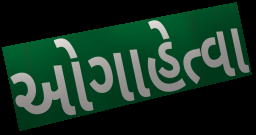
ઓગાહેત્વા